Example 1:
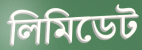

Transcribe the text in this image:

লিমিডেট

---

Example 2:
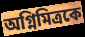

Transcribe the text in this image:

অগ্নিমিত্রকে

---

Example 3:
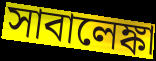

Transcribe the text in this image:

সাবালেঙ্কা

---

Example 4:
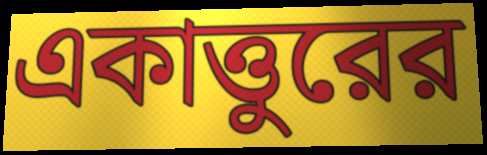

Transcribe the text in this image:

একাত্তুরের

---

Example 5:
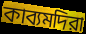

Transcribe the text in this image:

কাব্যমদিরা